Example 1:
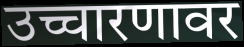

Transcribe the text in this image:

उच्चारणावर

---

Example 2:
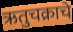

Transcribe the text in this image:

ऋतुचक्राचे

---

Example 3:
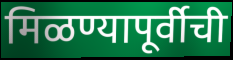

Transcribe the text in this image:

मिळण्यापूर्वीची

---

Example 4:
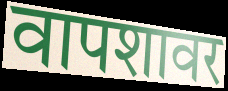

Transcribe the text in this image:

वापशावर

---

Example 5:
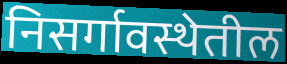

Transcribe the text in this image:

निसर्गावस्थेतील